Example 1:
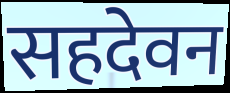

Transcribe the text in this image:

सहदेवन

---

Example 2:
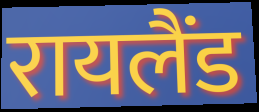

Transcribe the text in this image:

रायलैंड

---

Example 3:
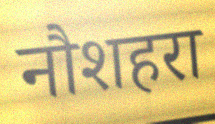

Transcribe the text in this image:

नौशहरा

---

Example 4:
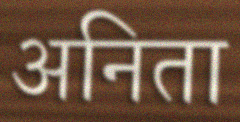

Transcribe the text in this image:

अनिता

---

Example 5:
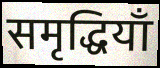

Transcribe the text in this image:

समृद्धियाँ